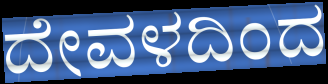
ದೇವಳದಿಂದ